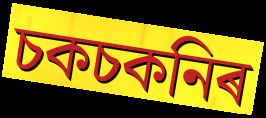
চকচকনিৰ